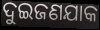
ଦୁଇଜଣଯାକ